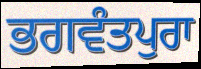
ਭਗਵੰਤਪੁਰਾ